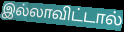
இல்லாவிட்டால்